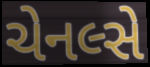
ચેનલ્સે